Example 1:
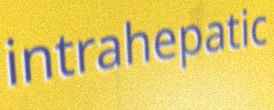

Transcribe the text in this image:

intrahepatic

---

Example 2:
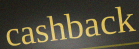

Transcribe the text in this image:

cashback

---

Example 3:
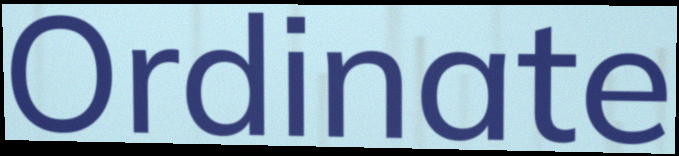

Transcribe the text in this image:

Ordinate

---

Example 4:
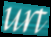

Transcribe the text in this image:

urt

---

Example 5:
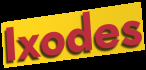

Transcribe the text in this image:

Ixodes